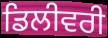
ਡਿਲੀਵਰੀ